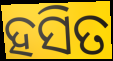
ହସିତ